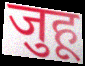
जुहू